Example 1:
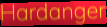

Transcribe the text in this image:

Hardanger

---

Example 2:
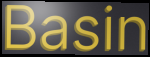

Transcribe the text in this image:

Basin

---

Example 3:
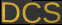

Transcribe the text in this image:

DCS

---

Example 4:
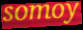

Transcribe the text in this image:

somoy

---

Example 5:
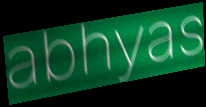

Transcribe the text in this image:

abhyas